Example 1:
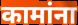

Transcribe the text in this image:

कामांना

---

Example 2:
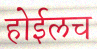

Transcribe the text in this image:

होईलच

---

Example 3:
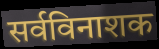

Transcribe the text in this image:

सर्वविनाशक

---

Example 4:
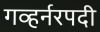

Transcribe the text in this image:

गव्हर्नरपदी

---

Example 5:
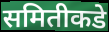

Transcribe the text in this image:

समितीकडे